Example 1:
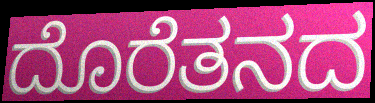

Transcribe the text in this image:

ದೊರೆತನದ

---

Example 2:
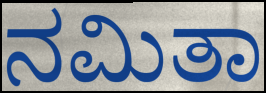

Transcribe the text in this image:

ನಮಿತಾ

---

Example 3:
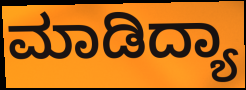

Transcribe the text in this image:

ಮಾಡಿದ್ಯಾ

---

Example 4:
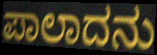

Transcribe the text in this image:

ಪಾಲಾದನು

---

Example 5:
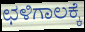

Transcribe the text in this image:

ಛಳಿಗಾಲಕ್ಕೆ